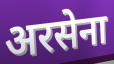
अरसेना